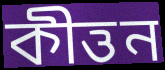
কীত্তন